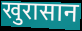
खुरासान